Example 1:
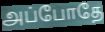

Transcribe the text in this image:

அப்போதே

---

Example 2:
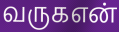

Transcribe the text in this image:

வருகஎன்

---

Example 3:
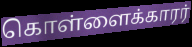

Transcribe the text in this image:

கொள்ளைக்காரர்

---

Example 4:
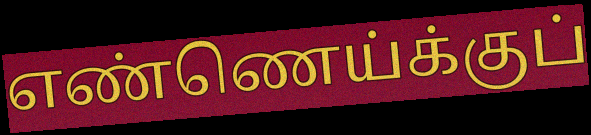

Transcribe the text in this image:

எண்ணெய்க்குப்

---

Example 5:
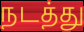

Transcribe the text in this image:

நடத்து